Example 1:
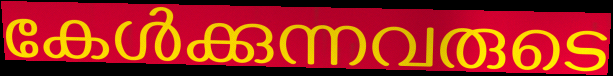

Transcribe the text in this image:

കേൾക്കുന്നവരുടെ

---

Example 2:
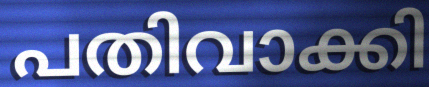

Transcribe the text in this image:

പതിവാക്കി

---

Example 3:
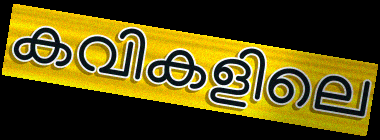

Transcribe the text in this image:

കവികളിലെ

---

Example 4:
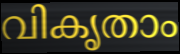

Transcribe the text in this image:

വികൃതാം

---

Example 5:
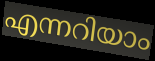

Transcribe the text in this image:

എന്നറിയാം